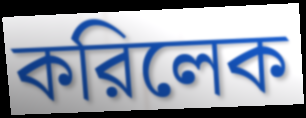
করিলেক